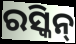
ରସ୍କିନ୍